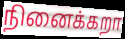
நினைக்கறா